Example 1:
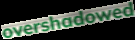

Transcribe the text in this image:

overshadowed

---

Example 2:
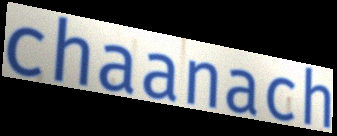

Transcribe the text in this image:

chaanach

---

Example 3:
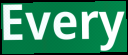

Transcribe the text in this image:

Every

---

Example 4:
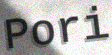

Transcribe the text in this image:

Pori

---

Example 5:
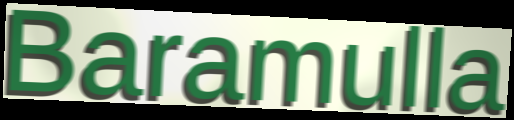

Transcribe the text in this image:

Baramulla